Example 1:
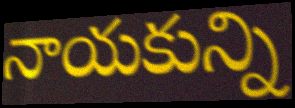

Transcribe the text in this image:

నాయకున్ని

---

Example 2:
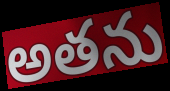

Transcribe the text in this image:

అతను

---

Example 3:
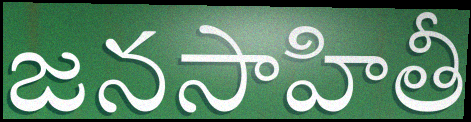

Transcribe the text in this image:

జనసాహితీ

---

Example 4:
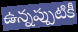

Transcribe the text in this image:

ఉన్నప్పుటికీ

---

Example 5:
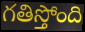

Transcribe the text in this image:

గతిస్తోంది